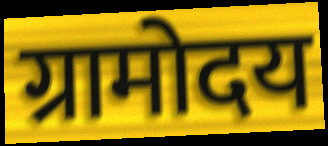
ग्रामोदय